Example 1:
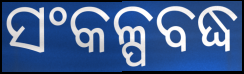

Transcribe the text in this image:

ସଂକଳ୍ପବଦ୍ଧ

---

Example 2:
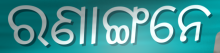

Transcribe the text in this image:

ରଣାଙ୍ଗନେ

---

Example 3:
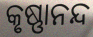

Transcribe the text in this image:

କୃଷ୍ଣାନନ୍ଦ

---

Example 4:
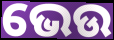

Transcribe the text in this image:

ଭେଉ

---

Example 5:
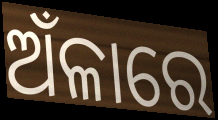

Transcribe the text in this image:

ଅଁଳାରେ